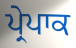
ਪ੍ਰੇਪਾਕ